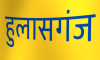
हुलासगंज